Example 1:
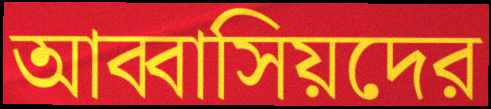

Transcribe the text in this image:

আব্বাসিয়দের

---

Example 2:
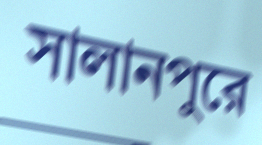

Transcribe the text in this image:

সালানপুরে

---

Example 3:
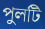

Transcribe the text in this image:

পুলটি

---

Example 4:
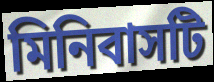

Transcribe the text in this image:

মিনিবাসটি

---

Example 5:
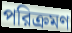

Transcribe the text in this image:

পরিক্রমণ